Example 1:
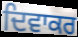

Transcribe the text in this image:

ਦਿਵਾਕਰ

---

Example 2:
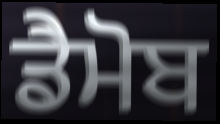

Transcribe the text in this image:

ਡੈਮੋਬ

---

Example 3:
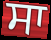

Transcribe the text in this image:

ਸਾ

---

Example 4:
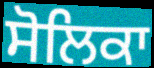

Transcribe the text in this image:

ਸੋਲਿਕਾ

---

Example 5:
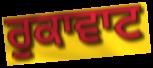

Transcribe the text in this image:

ਰੁਕਾਵਾਟ